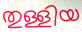
തുള്ളിയ